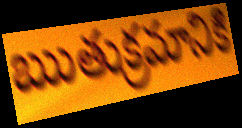
ఋతుక్రమానికి